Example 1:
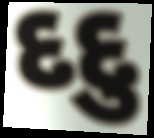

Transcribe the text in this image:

દદુ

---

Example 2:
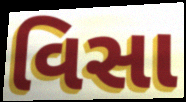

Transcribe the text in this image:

વિસા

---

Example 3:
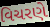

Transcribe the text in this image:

વિચરણે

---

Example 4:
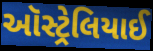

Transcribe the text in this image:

ઑસ્ટ્રેલિયાઈ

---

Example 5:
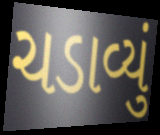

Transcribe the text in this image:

ચડાવ્યું